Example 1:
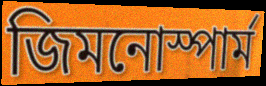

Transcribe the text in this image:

জিমনোস্পার্ম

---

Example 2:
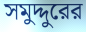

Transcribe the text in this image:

সমুদ্দুরের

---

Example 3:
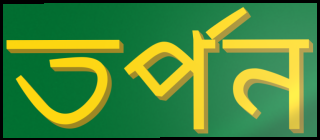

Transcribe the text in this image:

তর্পন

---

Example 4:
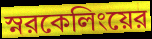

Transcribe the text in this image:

স্নরকেলিংয়ের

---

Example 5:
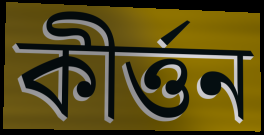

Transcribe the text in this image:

কীর্ত্তন